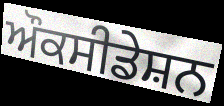
ਔਕਸੀਡੇਸ਼ਨ